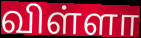
விள்ளா